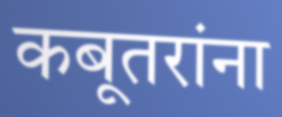
कबूतरांना